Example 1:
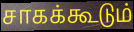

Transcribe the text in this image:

சாகக்கூடும்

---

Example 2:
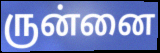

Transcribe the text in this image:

ருன்னை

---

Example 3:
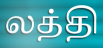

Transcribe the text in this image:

லத்தி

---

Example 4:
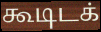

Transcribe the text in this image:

கூடிடக்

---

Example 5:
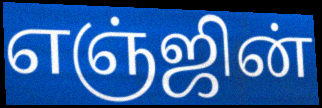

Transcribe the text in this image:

எஞ்ஜின்